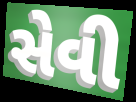
સેવી